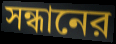
সন্ধানের